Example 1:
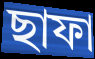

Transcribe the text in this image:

ছাফা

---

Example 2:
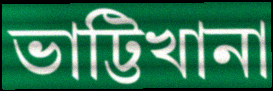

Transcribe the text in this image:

ভাট্টিখানা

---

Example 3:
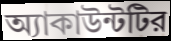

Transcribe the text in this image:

অ্যাকাউন্টটির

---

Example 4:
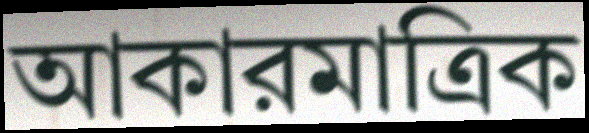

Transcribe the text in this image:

আকারমাত্রিক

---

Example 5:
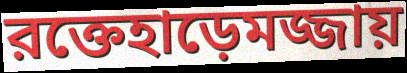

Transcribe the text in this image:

রক্তেহাড়েমজ্জায়